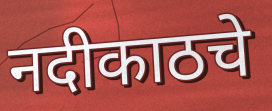
नदीकाठचे